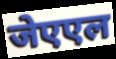
जेएएल